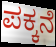
ಪಕ್ಕನೆ